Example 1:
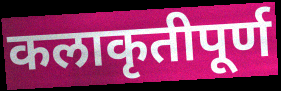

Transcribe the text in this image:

कलाकृतीपूर्ण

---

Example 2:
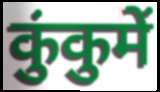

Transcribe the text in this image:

कुंकुमें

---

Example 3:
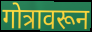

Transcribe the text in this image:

गोत्रावरून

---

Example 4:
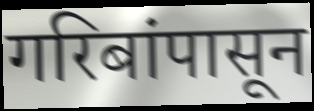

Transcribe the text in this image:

गरिबांपासून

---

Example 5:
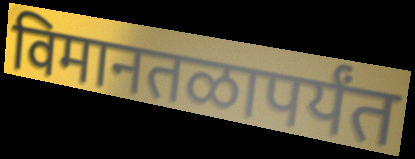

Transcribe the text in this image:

विमानतळापर्यंत